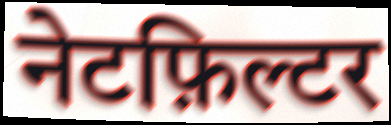
नेटफ़िल्टर